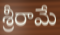
శ్రీరామే